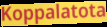
Koppalatota